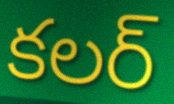
కలర్